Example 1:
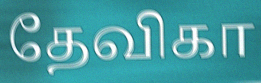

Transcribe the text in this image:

தேவிகா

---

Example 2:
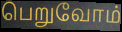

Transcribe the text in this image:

பெறுவோம்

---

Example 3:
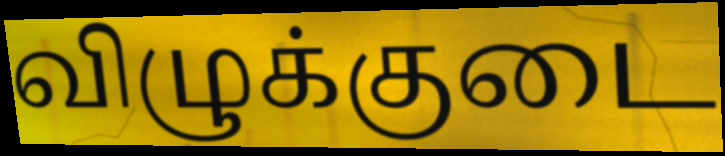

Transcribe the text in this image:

விழுக்குடை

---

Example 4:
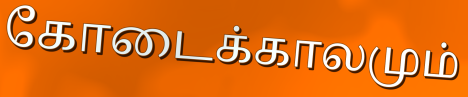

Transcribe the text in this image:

கோடைக்காலமும்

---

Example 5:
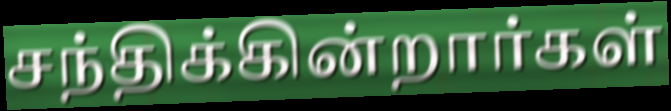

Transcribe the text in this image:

சந்திக்கின்றார்கள்